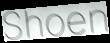
Shoen